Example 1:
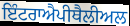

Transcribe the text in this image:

ਇੰਟਰਾਐਪੀਥੈਲੀਅਲ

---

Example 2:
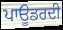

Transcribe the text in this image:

ਪਾਊਡਰਦੀ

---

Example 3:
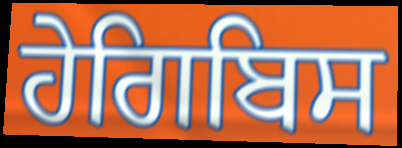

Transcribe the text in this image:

ਹੇਗਿਬਿਸ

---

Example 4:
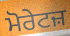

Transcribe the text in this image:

ਮੋਰੇਟਜ਼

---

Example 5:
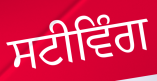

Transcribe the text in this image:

ਸਟੀਵਿੰਗ